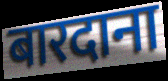
बारदाना